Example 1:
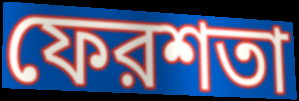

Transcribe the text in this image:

ফেরশতা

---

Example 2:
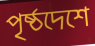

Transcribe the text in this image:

পৃষ্ঠদেশে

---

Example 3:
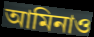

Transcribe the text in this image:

আমিনাও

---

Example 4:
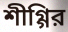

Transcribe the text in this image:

শীগ্গির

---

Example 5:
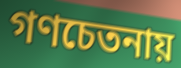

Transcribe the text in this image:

গণচেতনায়